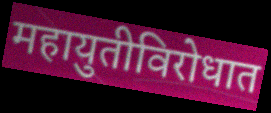
महायुतीविरोधात